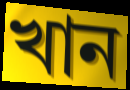
খান